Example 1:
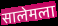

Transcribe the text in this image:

सालेमला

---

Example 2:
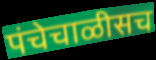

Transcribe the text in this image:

पंचेचाळीसच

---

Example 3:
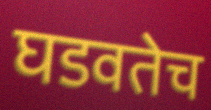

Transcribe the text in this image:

घडवतेच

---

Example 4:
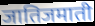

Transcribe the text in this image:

जातिजमाती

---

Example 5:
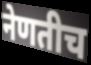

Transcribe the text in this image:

नेणतीच